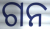
ଗନ